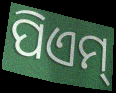
ପିଏମ୍